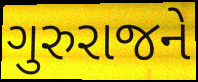
ગુરુરાજને